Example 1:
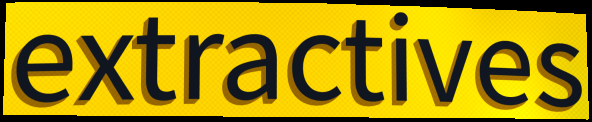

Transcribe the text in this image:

extractives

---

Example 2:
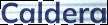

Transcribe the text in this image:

Caldera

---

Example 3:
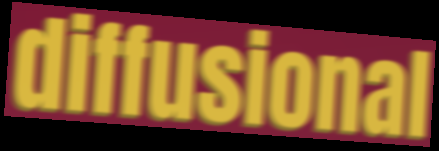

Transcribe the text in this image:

diffusional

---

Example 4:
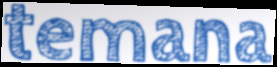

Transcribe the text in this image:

temana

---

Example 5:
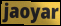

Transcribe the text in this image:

jaoyar